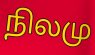
நிலமு